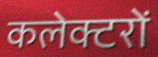
कलेक्टरों